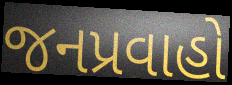
જનપ્રવાહો